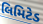
લિમિટેડ